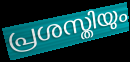
പ്രശസ്തിയും